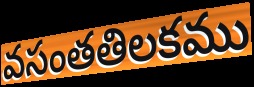
వసంతతిలకము